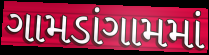
ગામડાંગામમાં